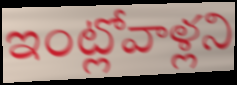
ఇంట్లోవాళ్లని